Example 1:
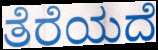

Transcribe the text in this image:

ತೆರೆಯದೆ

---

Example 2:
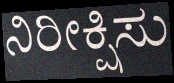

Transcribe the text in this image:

ನಿರೀಕ್ಷಿಸು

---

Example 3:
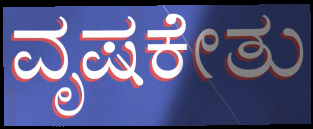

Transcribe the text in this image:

ವೃಷಕೇತು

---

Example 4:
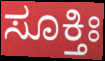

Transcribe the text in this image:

ಸೂಕ್ತಿಃ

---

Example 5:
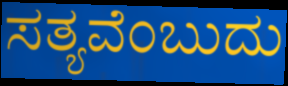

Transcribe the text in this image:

ಸತ್ಯವೆಂಬುದು